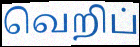
வெறிப்